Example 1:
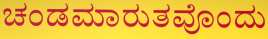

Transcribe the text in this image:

ಚಂಡಮಾರುತವೊಂದು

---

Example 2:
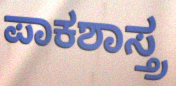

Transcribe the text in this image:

ಪಾಕಶಾಸ್ತ್ರ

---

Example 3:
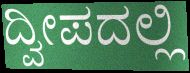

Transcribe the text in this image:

ದ್ವೀಪದಲ್ಲಿ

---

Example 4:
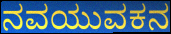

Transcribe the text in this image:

ನವಯುವಕನ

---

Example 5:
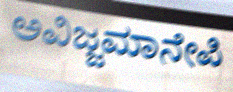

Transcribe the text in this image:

ಅವಿಜ್ಜಮಾನೇಪಿ